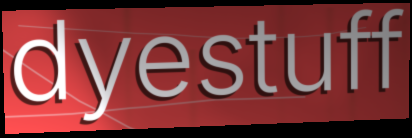
dyestuff